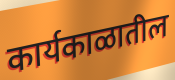
कार्यकाळातील